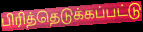
பிரித்தெடுக்கப்பட்டு